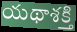
యథాశక్తి